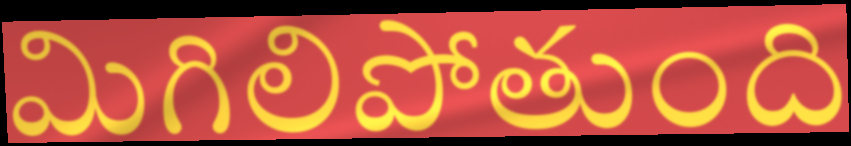
మిగిలిపోతుంది